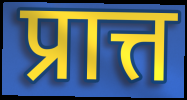
प्रात्त